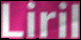
Liril